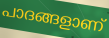
പാദങ്ങളാണ്